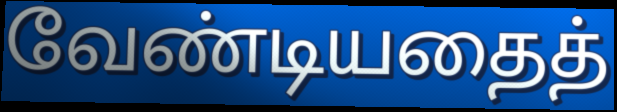
வேண்டியதைத்